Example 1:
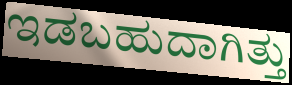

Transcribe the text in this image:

ಇಡಬಹುದಾಗಿತ್ತು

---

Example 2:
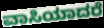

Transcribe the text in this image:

ವಾಸಿಯಾದರೆ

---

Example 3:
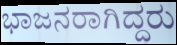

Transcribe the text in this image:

ಭಾಜನರಾಗಿದ್ದರು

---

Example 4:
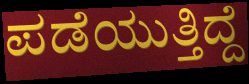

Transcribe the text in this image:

ಪಡೆಯುತ್ತಿದ್ದೆ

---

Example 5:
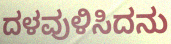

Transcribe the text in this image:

ದಳವುಳಿಸಿದನು